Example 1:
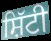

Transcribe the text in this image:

ਸ਼ਿੱਟੀ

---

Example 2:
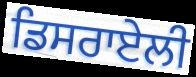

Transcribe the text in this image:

ਡਿਸਰਾਏਲੀ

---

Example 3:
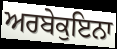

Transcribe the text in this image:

ਅਰਬੇਕੁਇਨਾ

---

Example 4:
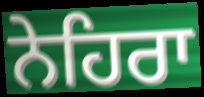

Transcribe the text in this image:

ਨੇਹਿਰਾ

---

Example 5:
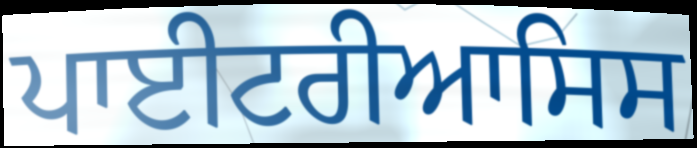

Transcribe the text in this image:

ਪਾਈਟਰੀਆਸਿਸ